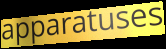
apparatuses